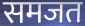
समजत